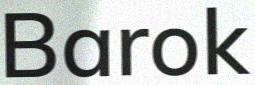
Barok